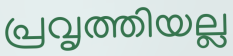
പ്രവൃത്തിയല്ല